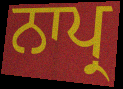
ਨਾਪ੍ਰ